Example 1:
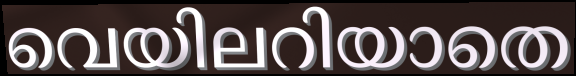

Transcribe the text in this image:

വെയിലറിയാതെ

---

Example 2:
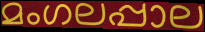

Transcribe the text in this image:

മംഗലപ്പാല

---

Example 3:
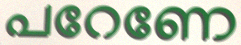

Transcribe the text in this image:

പറേണേ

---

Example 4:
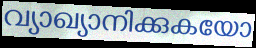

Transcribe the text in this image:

വ്യാഖ്യാനിക്കുകയോ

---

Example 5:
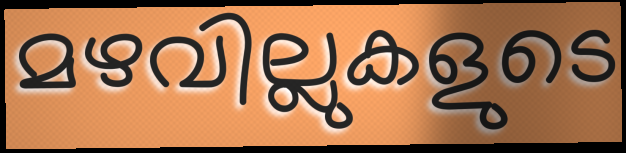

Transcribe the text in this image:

മഴവില്ലുകളുടെ